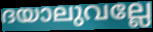
ദയാലുവല്ലേ